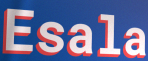
Esala